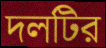
দলটির